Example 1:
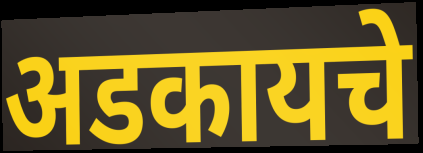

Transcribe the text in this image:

अडकायचे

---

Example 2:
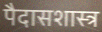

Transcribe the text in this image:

पैदासशास्त्र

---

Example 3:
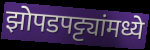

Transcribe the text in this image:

झोपडपट्ट्यांमध्ये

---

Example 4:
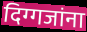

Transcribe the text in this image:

दिग्गजांना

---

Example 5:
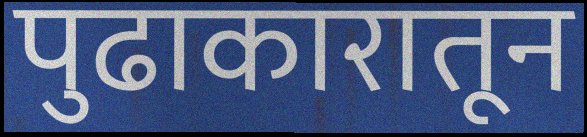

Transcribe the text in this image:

पुढाकारातून